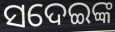
ସଦେଇଙ୍କ